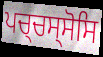
ਪਚ੍ਚਸ੍ਸੋਸਿ